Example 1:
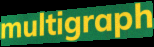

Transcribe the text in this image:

multigraph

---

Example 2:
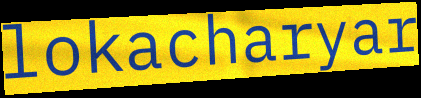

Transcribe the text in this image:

lokacharyar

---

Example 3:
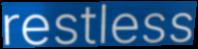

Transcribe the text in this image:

restless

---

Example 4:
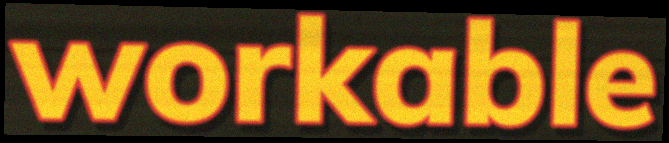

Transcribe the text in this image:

workable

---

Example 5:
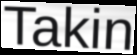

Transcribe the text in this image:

Takin